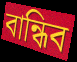
বান্ধিব